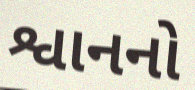
શ્વાનનો